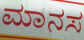
ಮಾನಸ